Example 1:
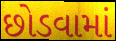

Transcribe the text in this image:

છોડવામાં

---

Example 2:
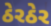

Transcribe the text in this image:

ઠેરઠેર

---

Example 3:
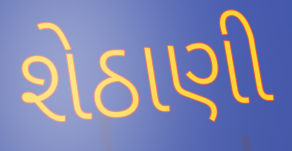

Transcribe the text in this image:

શેઠાણી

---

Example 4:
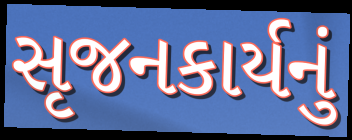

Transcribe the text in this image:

સૃજનકાર્યનું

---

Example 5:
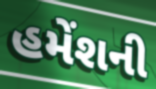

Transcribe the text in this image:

હમેંશની